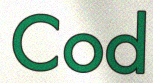
Cod